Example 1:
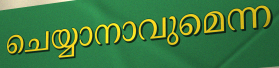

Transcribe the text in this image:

ചെയ്യാനാവുമെന്ന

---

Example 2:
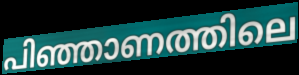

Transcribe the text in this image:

പിഞ്ഞാണത്തിലെ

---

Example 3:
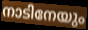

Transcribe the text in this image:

നാടിനേയും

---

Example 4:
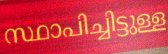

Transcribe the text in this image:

സ്ഥാപിച്ചിട്ടുള്ള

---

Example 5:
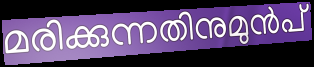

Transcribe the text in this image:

മരിക്കുന്നതിനുമുൻപ്